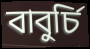
বাবুর্চি